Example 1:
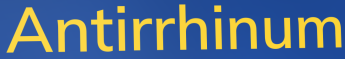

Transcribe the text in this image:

Antirrhinum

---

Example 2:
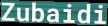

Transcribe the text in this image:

Zubaidi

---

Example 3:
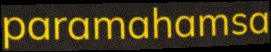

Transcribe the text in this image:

paramahamsa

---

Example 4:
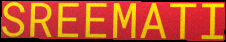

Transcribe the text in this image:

SREEMATI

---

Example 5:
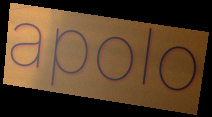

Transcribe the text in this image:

apolo